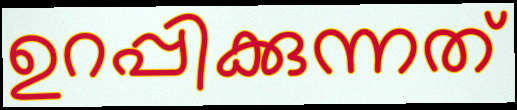
ഉറപ്പിക്കുന്നത്